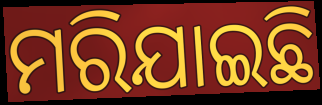
ମରିଯାଇଛି